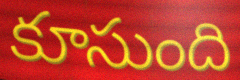
కూసుంది